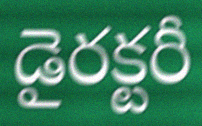
డైరక్టరీ